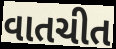
વાતચીત